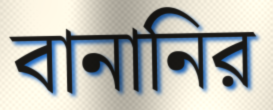
বানানির